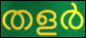
തളർ